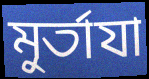
মুর্তাযা